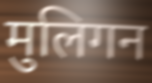
मुलिगन